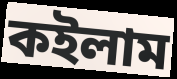
কইলাম